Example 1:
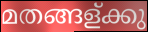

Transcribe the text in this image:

മതങ്ങള്ക്കു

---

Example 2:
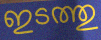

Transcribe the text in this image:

ഇടത്തു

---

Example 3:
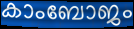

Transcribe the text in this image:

കാംബോജം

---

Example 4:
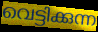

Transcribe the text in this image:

വെട്ടിക്കുന്ന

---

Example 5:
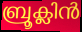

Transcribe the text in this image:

ബ്രൂക്ലിൻ